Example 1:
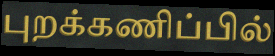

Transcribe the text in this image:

புறக்கணிப்பில்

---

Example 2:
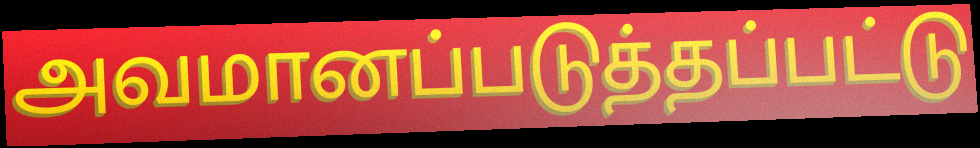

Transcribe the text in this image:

அவமானப்படுத்தப்பட்டு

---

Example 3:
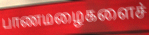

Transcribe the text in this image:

பாணமழைகளைச்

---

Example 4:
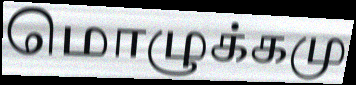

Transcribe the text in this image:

மொழுக்கமு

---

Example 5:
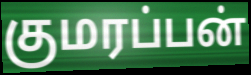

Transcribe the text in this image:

குமரப்பன்